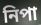
নিপা